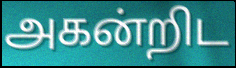
அகன்றிட